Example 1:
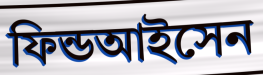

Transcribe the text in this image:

ফিন্ডআইসেন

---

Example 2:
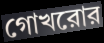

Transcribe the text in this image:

গোখরোর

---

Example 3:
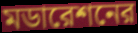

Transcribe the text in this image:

মডারেশনের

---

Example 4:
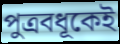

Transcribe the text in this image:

পুত্রবধূকেই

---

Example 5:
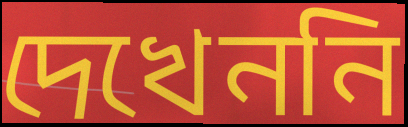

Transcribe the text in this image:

দেখেননি